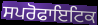
ਸਪਰੋਫਾਇਟਿਕ